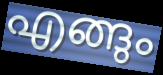
എങ്ങും